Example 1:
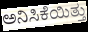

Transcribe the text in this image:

ಅನಿಸಿಕೆಯಿತ್ತು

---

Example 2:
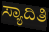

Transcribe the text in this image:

ಸ್ಯಾದಿತಿ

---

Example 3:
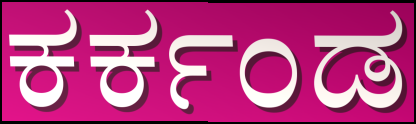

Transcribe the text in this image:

ಕರ್ಕಂಡ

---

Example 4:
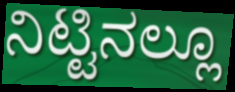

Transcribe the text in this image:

ನಿಟ್ಟಿನಲ್ಲೂ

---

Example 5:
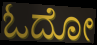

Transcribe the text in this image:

ಓದೋ